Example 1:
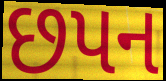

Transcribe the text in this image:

છપન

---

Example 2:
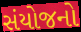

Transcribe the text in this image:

સંયોજનો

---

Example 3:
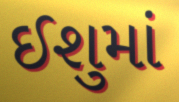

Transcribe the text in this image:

ઈશુમાં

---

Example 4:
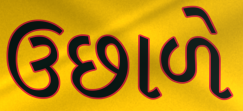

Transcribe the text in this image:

ઉછાળે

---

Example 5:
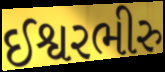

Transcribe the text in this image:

ઈશ્વરભીરુ